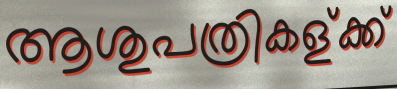
ആശുപത്രികള്ക്ക്